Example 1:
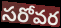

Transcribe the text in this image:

సరోవర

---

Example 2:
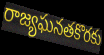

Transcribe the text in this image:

రాజ్యఘనతకొరకు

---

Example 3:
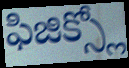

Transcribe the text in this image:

ఫిజిక్స్లో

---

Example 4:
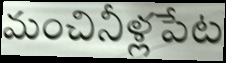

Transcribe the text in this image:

మంచినీళ్లపేట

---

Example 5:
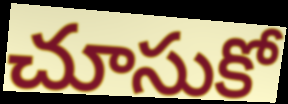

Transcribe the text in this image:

చూసుకో